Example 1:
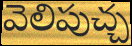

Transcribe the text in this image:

వెలిపుచ్చ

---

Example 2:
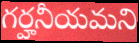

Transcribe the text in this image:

గర్హనీయమని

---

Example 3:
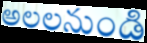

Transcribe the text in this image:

అలలనుండి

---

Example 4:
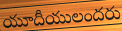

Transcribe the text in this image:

యూదీయులందరు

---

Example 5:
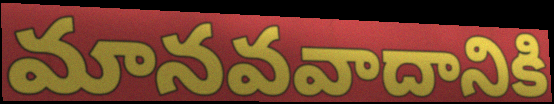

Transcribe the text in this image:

మానవవాదానికి